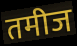
तमीज